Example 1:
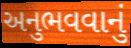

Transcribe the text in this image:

અનુભવવાનું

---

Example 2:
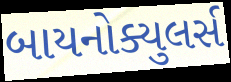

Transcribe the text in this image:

બાયનોક્યુલર્સ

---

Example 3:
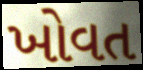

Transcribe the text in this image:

ખોવત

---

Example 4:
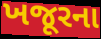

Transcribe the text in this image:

ખજૂરના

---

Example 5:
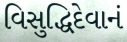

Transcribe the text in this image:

વિસુદ્ધિદેવાનં